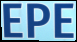
EPE